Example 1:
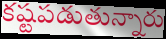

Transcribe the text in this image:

కష్టపడుతున్నారు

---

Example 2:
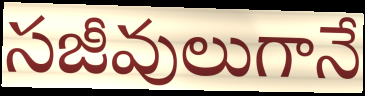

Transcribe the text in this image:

సజీవులుగానే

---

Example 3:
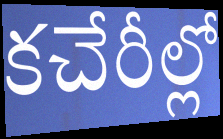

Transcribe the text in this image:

కచేరీల్లో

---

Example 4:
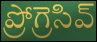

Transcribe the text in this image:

ప్రోగ్రెసివ్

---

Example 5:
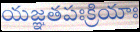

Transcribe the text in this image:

యజ్ఞతపఃక్రియాః